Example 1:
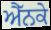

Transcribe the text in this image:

ਐੱਨਕੇ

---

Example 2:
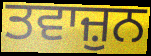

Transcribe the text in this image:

ਤਵਾਜ਼ੁਨ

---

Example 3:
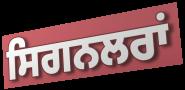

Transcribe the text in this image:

ਸਿਗਨਲਰਾਂ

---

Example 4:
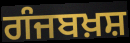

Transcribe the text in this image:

ਗੰਜਬਖ਼ਸ਼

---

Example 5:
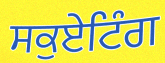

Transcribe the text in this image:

ਸਕੁਏਟਿੰਗ